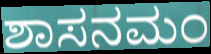
ಶಾಸನಮಂ